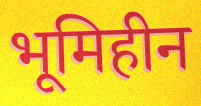
भूमिहीन